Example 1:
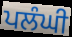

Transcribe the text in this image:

ਪਲੰਘੀ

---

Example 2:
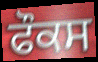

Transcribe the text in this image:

ਫੌਕਸ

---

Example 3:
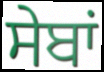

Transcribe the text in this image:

ਸੇਬਾਂ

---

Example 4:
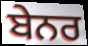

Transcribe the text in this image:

ਬੇਨਰ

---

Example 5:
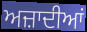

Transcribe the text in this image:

ਅਜ਼ਾਦੀਆਂ